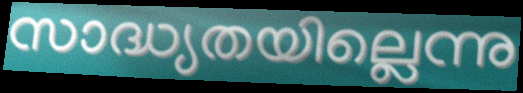
സാദ്ധ്യതയില്ലെന്നു